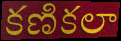
కణికలా